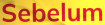
Sebelum